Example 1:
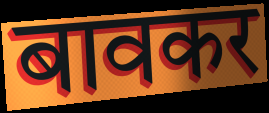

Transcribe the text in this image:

बावकर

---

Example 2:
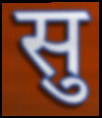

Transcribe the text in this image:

सु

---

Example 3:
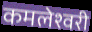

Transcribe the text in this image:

कमलेश्वरी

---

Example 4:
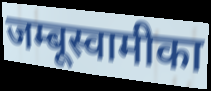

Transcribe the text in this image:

जम्बूस्वामीका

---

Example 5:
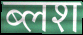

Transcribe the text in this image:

ब्लश